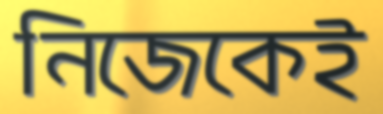
নিজেকেই